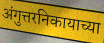
अंगुत्तरनिकायाच्या